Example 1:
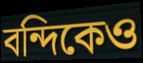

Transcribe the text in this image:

বন্দিকেও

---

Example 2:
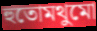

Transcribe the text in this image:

হুতোমথুমো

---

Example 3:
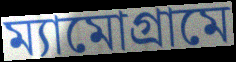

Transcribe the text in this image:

ম্যামোগ্রামে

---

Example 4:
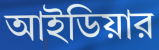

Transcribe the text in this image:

আইডিয়ার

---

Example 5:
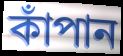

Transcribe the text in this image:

কাঁপান